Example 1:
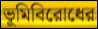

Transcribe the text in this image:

ভূমিবিরোধের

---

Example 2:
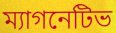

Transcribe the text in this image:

ম্যাগনেটিভ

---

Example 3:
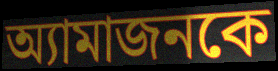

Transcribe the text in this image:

অ্যামাজনকে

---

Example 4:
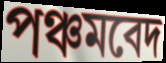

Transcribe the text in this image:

পঞ্চমবেদ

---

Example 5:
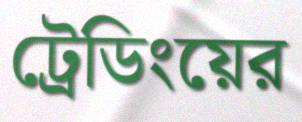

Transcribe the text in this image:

ট্রেডিংয়ের